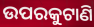
ଉପରକୁଟାଣି